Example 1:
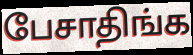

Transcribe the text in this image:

பேசாதிங்க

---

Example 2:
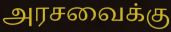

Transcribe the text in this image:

அரசவைக்கு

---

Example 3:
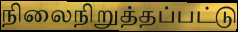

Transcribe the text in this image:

நிலைநிறுத்தப்பட்டு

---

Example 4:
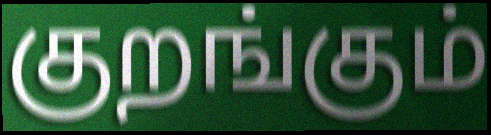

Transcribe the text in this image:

குறங்கும்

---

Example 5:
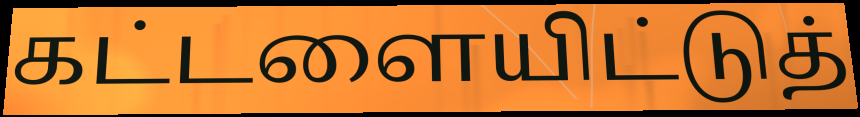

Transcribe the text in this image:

கட்டளையிட்டுத்